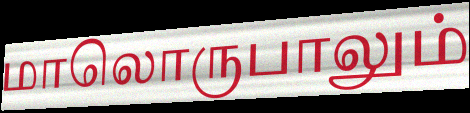
மாலொருபாலும்